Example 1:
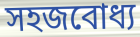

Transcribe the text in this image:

সহজবোধ্য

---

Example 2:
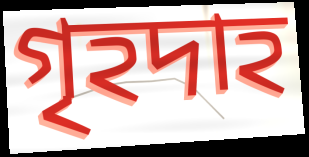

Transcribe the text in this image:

গৃহদাহ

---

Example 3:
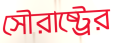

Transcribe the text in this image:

সৌরাষ্ট্রের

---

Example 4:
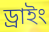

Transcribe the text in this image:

ড্রাইং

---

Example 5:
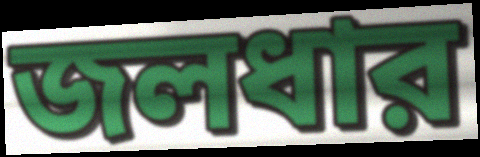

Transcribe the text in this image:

জলধার